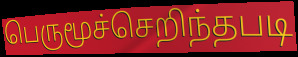
பெருமூச்செறிந்தபடி